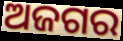
ଅଜଗର